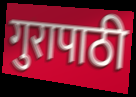
गुरापाठी